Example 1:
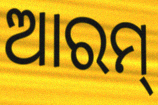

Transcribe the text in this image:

ଆରମ୍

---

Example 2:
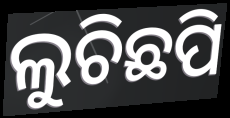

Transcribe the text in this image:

ଲୁଚିଛପି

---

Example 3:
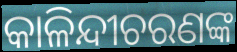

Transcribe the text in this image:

କାଳିନ୍ଦୀଚରଣଙ୍କ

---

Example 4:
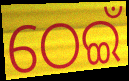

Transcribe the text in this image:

ଠେଇଁ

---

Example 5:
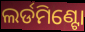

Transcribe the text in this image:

ଲର୍ଡମିଣ୍ଟୋ